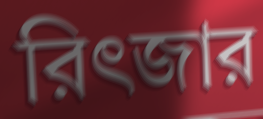
রিৎজার